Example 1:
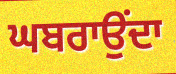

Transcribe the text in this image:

ਘਬਰਾਉਂਦਾ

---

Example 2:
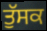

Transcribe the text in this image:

ਤੁੱਸਕ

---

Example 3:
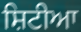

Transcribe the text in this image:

ਸ਼ਿਟੀਆ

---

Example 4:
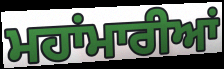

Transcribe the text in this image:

ਮਹਾਂਮਾਰੀਆਂ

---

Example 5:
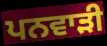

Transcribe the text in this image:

ਪਨਵਾੜੀ